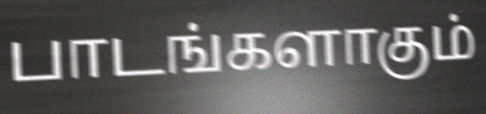
பாடங்களாகும்